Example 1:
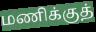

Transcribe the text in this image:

மணிக்குத்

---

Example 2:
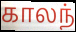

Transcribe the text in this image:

காலந்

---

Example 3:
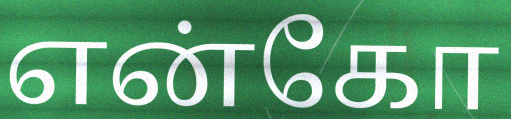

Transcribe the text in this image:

என்கோ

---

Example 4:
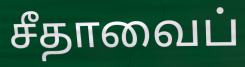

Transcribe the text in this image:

சீதாவைப்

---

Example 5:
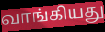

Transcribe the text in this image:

வாங்கியது